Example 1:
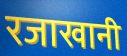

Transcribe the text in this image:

रजाखानी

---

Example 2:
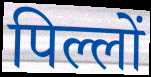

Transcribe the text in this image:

पिल्लों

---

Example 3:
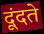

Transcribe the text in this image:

दूंदते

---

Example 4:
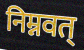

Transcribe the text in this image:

निम्नवत्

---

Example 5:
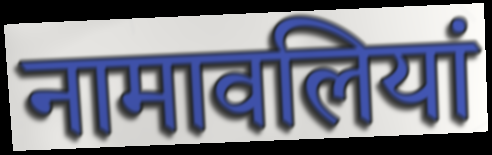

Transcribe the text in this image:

नामावलियां